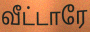
வீட்டாரே